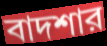
বাদশার